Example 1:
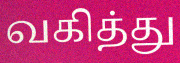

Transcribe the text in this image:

வகித்து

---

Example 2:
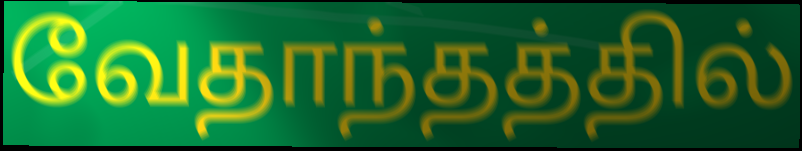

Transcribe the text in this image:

வேதாந்தத்தில்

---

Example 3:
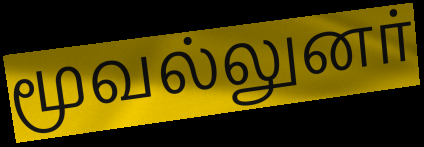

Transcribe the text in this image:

மூவல்லுனர்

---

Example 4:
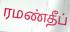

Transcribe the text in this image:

ரமண்தீப்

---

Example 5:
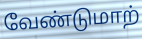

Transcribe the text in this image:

வேண்டுமாற்